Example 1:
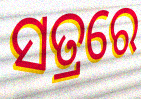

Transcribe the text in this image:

ସତ୍ରରେ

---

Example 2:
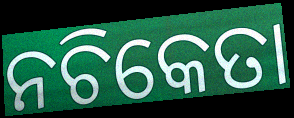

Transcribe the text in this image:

ନଚିକେତା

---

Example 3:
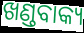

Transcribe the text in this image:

ଖଣ୍ଡବାକ୍ୟ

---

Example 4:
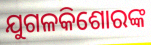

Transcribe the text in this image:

ଯୁଗଳକିଶୋରଙ୍କ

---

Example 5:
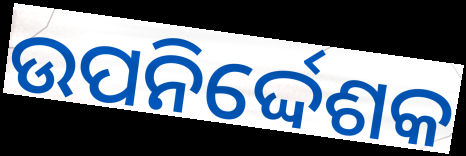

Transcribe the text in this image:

ଉପନିର୍ଦ୍ଦେଶକ